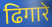
ढिगारे